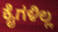
ಕೈಗಳಿಲ್ಲ